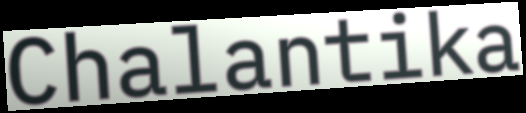
Chalantika